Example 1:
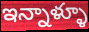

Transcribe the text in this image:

ఇన్నాళ్ళూ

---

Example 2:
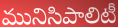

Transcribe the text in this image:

మునిసిపాలిటీ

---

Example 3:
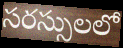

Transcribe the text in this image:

సరస్సులలో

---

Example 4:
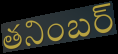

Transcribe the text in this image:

తనింబర్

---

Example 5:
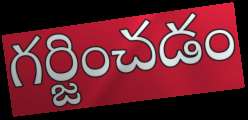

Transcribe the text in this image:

గర్జించడం